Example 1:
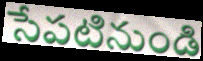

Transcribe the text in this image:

సేపటినుండి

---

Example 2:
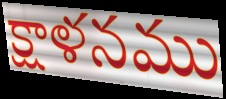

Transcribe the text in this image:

క్షాళనము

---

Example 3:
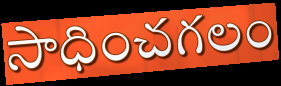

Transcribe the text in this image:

సాధించగలం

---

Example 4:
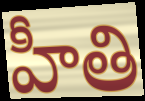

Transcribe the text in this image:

హీతి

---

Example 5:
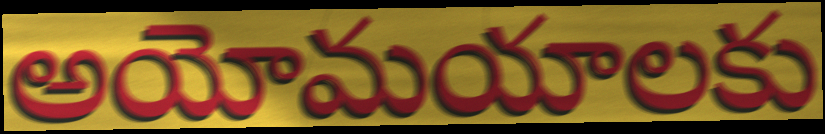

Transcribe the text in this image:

అయోమయాలకు